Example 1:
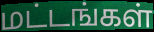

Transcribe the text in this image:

மட்டங்கள்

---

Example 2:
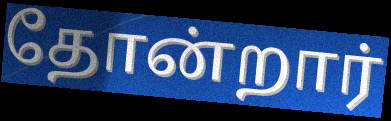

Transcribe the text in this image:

தோன்றார்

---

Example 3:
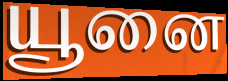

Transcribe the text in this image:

யூனை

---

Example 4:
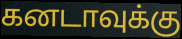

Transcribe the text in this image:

கனடாவுக்கு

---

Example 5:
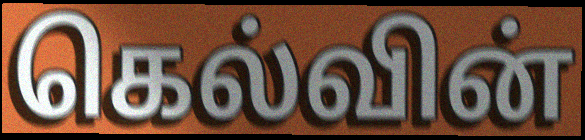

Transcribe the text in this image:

கெல்வின்